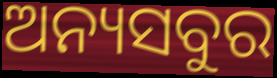
ଅନ୍ୟସବୁର